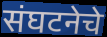
संघटनेचे